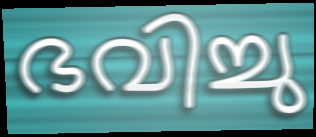
ഭവിച്ചു